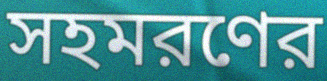
সহমরণের